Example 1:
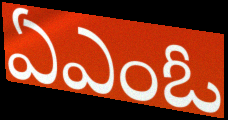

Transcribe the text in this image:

ఏఎంఓ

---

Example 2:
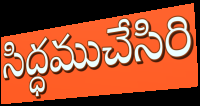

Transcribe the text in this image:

సిద్ధముచేసిరి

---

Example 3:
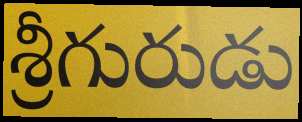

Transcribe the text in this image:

శ్రీగురుడు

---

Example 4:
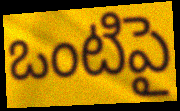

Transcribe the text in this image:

ఒంటిపై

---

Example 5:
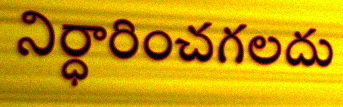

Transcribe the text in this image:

నిర్ధారించగలదు